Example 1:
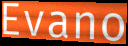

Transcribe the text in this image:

Evano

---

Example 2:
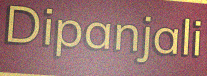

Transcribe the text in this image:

Dipanjali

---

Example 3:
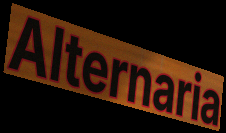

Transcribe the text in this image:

Alternaria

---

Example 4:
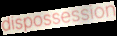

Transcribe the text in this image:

dispossession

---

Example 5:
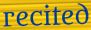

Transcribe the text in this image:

recited